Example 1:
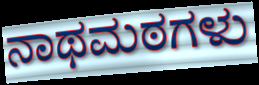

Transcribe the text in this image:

ನಾಥಮಠಗಳು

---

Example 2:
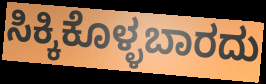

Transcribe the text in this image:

ಸಿಕ್ಕಿಕೊಳ್ಳಬಾರದು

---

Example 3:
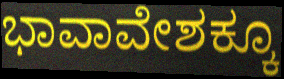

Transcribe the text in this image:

ಭಾವಾವೇಶಕ್ಕೂ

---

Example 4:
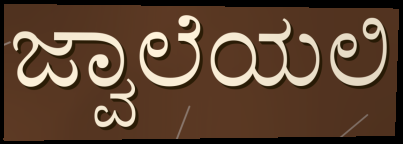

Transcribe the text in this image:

ಜ್ವಾಲೆಯಲಿ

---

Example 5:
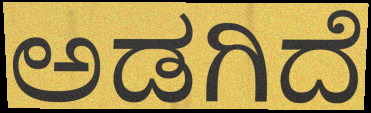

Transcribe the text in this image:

ಅಡಗಿದೆ